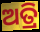
ଅତ୍ରି